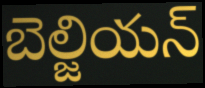
బెల్జియన్